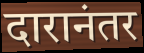
दारानंतर